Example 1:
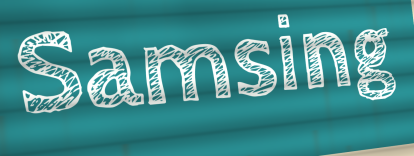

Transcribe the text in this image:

Samsing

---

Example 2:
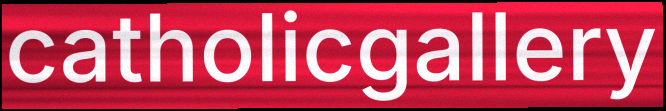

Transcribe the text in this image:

catholicgallery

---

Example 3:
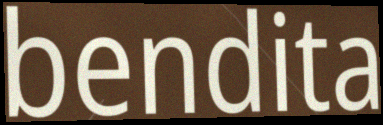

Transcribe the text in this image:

bendita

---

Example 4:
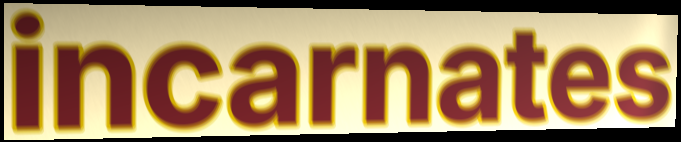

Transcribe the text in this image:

incarnates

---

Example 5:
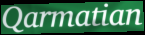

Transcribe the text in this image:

Qarmatian